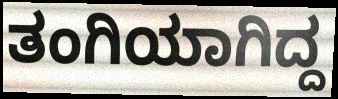
ತಂಗಿಯಾಗಿದ್ದ